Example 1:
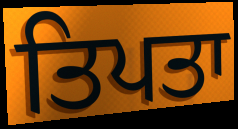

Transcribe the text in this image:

ਤਿਪਤਾ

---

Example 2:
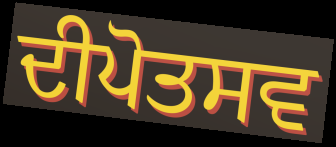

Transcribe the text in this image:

ਦੀਪੋਤਸਵ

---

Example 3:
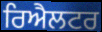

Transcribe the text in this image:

ਰਿਐਲਟਰ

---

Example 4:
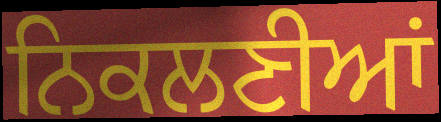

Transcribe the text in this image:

ਨਿਕਲਣੀਆਂ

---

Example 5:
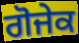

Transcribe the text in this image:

ਗੋਜੇਕ